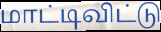
மாட்டிவிட்டு